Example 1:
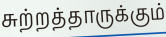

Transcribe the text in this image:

சுற்றத்தாருக்கும்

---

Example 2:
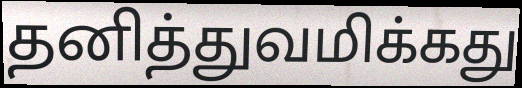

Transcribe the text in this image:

தனித்துவமிக்கது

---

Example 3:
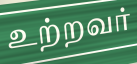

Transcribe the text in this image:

உற்றவர்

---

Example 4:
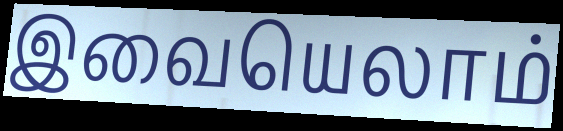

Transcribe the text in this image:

இவையெலாம்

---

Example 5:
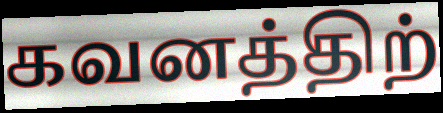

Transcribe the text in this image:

கவனத்திற்